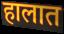
हालात